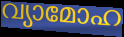
വ്യാമോഹ